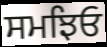
ਸਮਝਿਓ